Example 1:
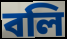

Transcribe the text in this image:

বলি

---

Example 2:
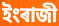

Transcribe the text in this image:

ইংৰাজী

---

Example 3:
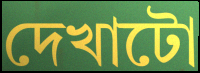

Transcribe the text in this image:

দেখাটো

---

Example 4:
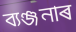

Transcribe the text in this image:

ব্যঞ্জনাৰ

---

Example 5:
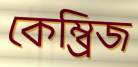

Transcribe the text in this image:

কেম্ব্ৰিজ